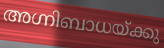
അഗ്നിബാധയ്ക്കു